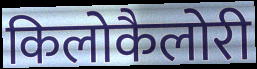
किलोकैलोरी